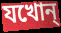
যখোন্